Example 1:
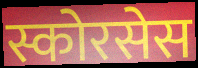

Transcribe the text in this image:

स्कोरसेस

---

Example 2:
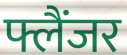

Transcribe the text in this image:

फ्लैंजर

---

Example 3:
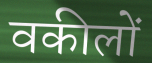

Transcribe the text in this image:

वकीलों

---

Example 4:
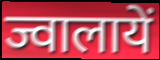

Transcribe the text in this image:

ज्वालायें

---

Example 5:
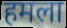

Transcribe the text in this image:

हमला